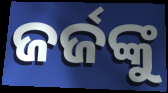
ଜର୍ଜଙ୍କୁ